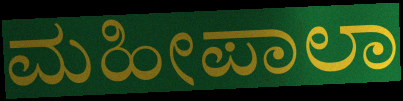
ಮಹೀಪಾಲಾ